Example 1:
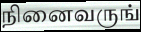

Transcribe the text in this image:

நினைவருங்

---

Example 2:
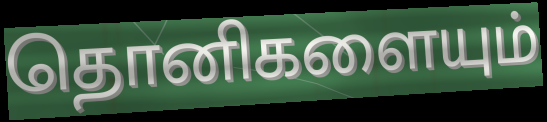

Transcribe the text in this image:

தொனிகளையும்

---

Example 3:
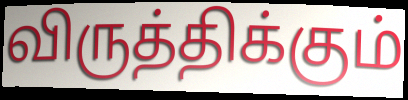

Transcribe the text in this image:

விருத்திக்கும்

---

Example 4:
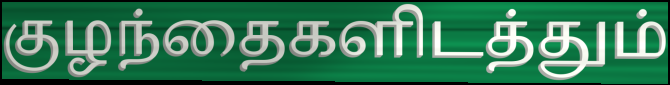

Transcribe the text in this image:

குழந்தைகளிடத்தும்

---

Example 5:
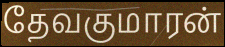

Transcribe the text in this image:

தேவகுமாரன்